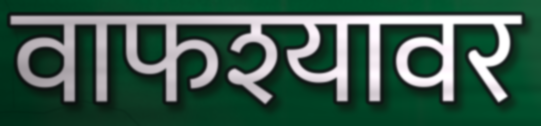
वाफश्यावर